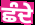
ਛੰਦੇ